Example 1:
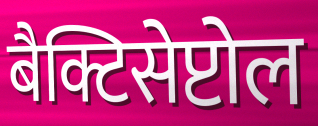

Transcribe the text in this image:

बैक्टिसेप्टोल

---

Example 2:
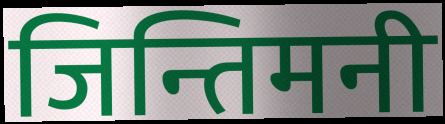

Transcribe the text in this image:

जिन्तिमनी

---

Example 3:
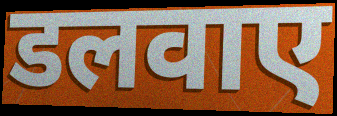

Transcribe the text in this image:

डलवाए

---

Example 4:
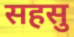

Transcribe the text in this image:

सहसु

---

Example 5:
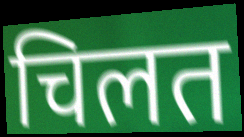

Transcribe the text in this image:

चिलत